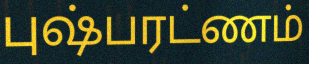
புஷ்பரட்ணம்